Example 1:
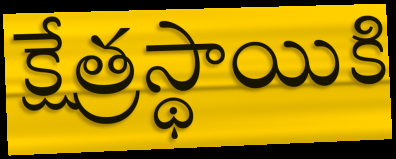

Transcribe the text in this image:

క్షేత్రస్థాయికి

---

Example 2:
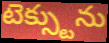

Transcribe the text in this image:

టెక్స్టును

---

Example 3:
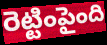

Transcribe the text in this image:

రెట్టింపైంది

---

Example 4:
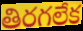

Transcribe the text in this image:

తిరగలేక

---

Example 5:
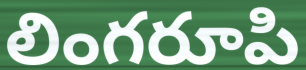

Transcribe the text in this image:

లింగరూపి